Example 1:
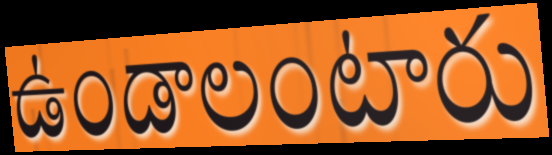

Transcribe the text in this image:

ఉండాలంటారు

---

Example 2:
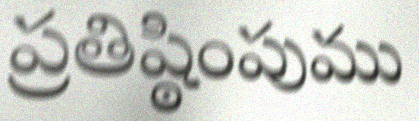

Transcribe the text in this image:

ప్రతిష్ఠింపుము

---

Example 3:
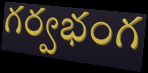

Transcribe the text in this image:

గర్వభంగ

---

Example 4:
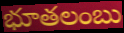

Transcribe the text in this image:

భూతలంబు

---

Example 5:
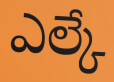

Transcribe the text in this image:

ఎల్కే